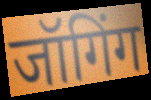
जॉगिंग